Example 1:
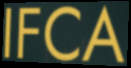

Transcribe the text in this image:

IFCA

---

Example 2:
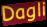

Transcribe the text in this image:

Dagli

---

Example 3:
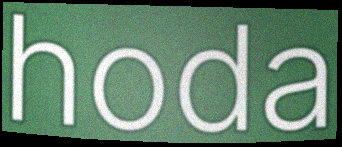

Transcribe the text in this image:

hoda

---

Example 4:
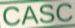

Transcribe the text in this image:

CASC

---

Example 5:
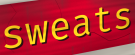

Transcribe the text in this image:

sweats